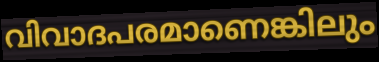
വിവാദപരമാണെങ്കിലും